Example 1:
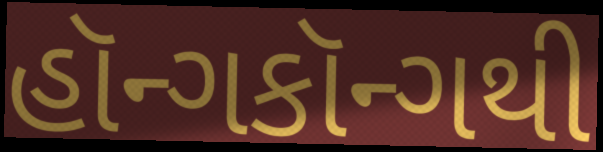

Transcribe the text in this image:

હૉન્ગકૉન્ગથી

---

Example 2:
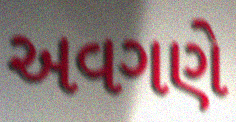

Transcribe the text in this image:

અવગણે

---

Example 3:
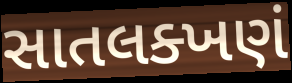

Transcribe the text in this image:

સાતલક્ખણં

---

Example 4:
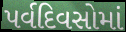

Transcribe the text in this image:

પર્વદિવસોમાં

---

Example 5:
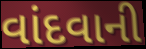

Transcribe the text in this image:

વાંદવાની